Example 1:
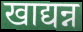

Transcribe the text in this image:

खाद्यन्न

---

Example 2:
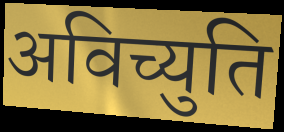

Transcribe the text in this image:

अविच्युति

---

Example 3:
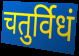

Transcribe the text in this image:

चतुर्विधं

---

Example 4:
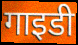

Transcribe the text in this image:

गाइडी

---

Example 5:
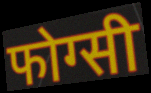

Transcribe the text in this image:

फोग्सी